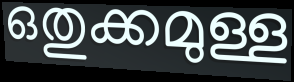
ഒതുക്കമുള്ള